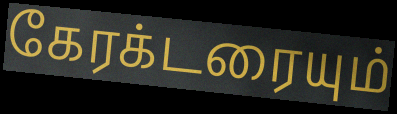
கேரக்டரையும்